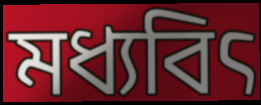
মধ্যবিৎ